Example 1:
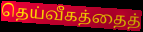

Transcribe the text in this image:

தெய்வீகத்தைத்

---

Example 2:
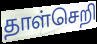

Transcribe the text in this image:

தாள்செறி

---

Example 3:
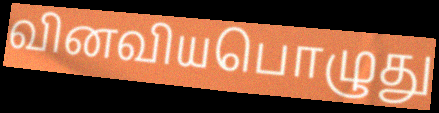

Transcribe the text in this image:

வினவியபொழுது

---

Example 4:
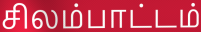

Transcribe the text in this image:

சிலம்பாட்டம்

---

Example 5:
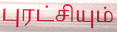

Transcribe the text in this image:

புரட்சியும்